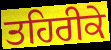
ਤਹਿਰੀਕੇ